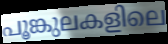
പൂങ്കുലകളിലെ